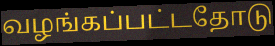
வழங்கப்பட்டதோடு